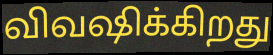
விவஷிக்கிறது